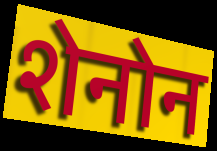
शेनोन